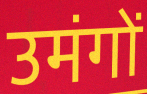
उमंगों